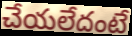
చేయలేదంటే